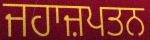
ਜਹਾਜ਼ਪਤਨ